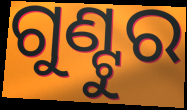
ଗୁଣ୍ଟୁର